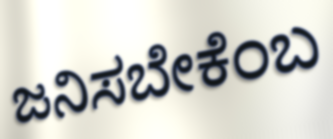
ಜನಿಸಬೇಕೆಂಬ